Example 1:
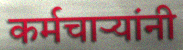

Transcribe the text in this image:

कर्मचाऱ्यांनी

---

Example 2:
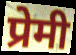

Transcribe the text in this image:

प्रेमी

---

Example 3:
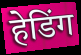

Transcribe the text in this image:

हेडिंग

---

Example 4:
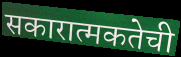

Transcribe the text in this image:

सकारात्मकतेची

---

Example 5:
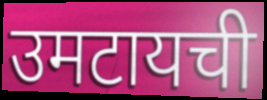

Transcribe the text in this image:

उमटायची